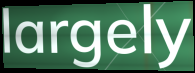
largely